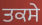
ਤਕਸੇ